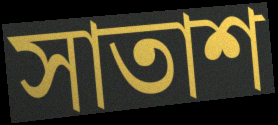
সাতাশ